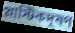
প্লাস্টিকদূষণ